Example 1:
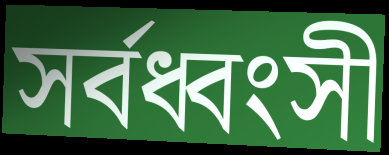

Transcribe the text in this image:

সর্বধ্বংসী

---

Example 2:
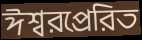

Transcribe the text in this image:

ঈশ্বরপ্রেরিত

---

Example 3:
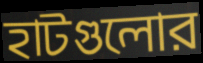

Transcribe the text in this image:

হাটগুলোর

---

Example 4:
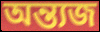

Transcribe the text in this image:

অন্ত্যজ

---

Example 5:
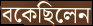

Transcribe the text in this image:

বকেছিলেন